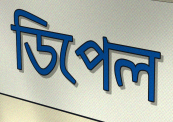
ডিপেল